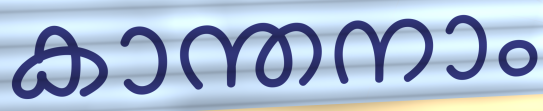
കാന്തനാം